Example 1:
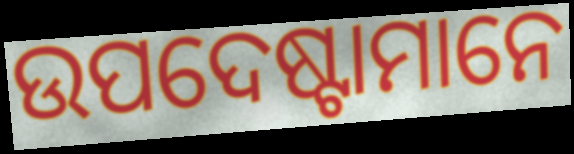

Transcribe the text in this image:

ଉପଦେଷ୍ଟାମାନେ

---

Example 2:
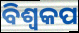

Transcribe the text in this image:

ବିଶ୍ବକପ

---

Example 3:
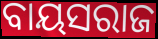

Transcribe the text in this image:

ବାୟସରାଜ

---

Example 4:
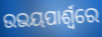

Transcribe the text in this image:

ଉଭୟପାର୍ଶ୍ବରେ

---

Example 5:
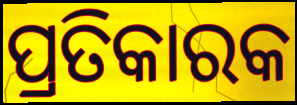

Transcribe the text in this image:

ପ୍ରତିକାରକ